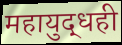
महायुद्धही